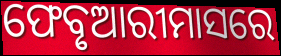
ଫେବୃଆରୀମାସରେ